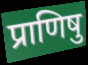
प्राणिषु